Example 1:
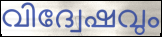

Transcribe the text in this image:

വിദ്വേഷവും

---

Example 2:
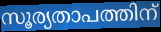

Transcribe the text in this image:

സൂര്യതാപത്തിന്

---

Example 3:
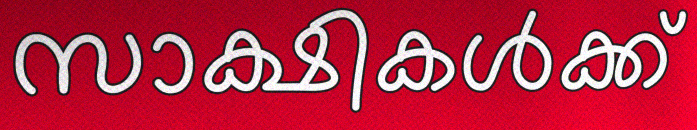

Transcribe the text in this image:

സാക്ഷികൾക്ക്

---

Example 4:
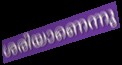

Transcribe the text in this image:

ശരിയാണെന്നു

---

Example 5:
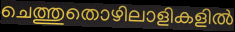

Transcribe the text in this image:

ചെത്തുതൊഴിലാളികളിൽ